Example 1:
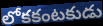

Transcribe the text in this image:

లోకకంటకుడు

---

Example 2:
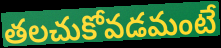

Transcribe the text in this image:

తలచుకోవడమంటే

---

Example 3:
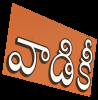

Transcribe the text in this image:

వాడికీ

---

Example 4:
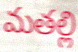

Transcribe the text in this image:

మతల్లి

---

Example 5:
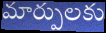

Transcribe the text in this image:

మార్పులకు